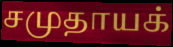
சமுதாயக்